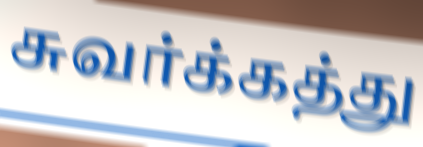
சுவர்க்கத்து